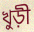
খুড়ী